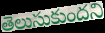
తెలుసుకుందని